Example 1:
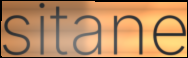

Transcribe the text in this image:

sitane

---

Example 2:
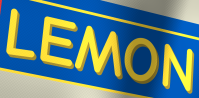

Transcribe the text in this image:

LEMON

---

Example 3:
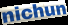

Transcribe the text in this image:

nichun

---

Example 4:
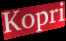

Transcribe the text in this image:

Kopri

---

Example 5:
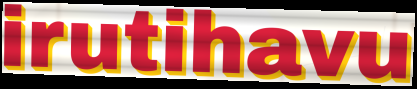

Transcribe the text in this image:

irutihavu